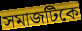
সমাজটিকে